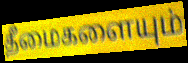
தீமைகளையும்